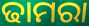
ଢାମରା